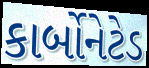
કાર્બોનેટેડ